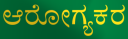
ಆರೋಗ್ಯಕರ